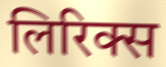
लिरिक्स